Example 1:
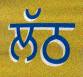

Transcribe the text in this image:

ਲੱਠ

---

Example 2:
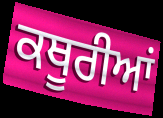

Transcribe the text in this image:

ਕਥੂਰੀਆਂ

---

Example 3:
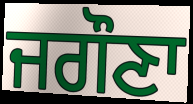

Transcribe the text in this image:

ਜਗੌਣਾ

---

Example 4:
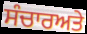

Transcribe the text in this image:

ਸੰਚਾਰਅਤੇ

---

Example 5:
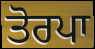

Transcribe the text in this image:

ਤੋਰਪਾ